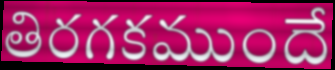
తిరగకముందే